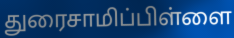
துரைசாமிப்பிள்ளை